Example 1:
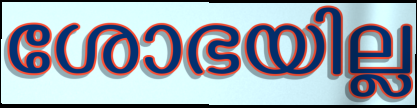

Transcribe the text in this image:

ശോഭയില്ല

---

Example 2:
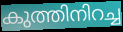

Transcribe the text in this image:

കുത്തിനിറച്ച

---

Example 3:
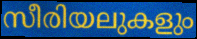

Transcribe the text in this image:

സീരിയലുകളും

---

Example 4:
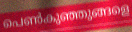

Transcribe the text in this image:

പെൺകുഞ്ഞുങ്ങളെ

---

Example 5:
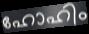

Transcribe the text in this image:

ഹോഹിം